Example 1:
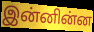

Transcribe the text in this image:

இன்னின்ன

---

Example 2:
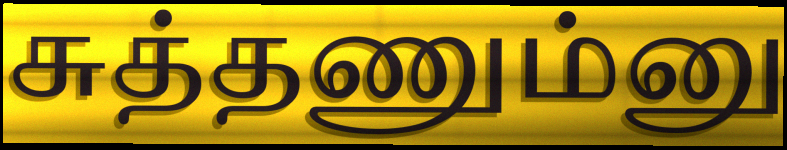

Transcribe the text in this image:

சுத்தணும்னு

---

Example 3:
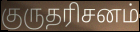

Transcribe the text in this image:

குருதரிசனம்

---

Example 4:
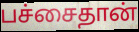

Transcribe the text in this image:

பச்சைதான்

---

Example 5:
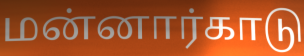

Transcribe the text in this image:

மன்னார்காடு